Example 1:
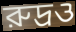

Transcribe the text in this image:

রুদ্রও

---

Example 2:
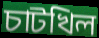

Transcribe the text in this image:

চাটখিল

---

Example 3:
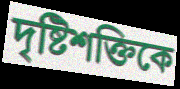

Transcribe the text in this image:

দৃষ্টিশক্তিকে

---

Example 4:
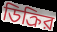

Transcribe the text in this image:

ডিক্রির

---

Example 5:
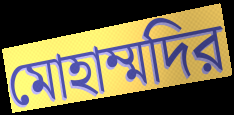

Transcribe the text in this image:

মোহাম্মদির